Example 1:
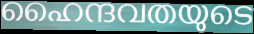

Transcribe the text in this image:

ഹൈന്ദവതയുടെ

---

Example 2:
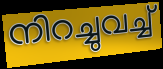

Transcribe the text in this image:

നിറച്ചുവച്ച്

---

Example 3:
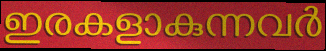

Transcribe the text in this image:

ഇരകളാകുന്നവർ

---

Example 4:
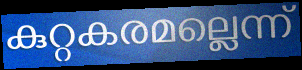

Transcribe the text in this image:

കുറ്റകരമല്ലെന്ന്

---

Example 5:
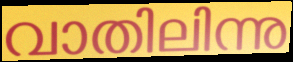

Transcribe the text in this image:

വാതിലിന്നു